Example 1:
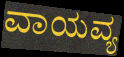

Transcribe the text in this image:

ವಾಯವ್ಯ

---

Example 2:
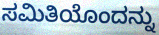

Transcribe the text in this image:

ಸಮಿತಿಯೊಂದನ್ನು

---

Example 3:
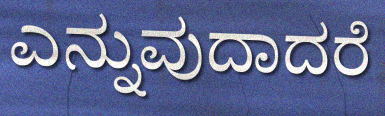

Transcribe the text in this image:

ಎನ್ನುವುದಾದರೆ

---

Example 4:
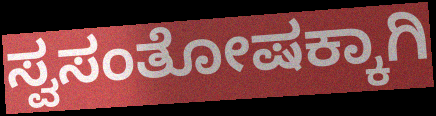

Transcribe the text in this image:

ಸ್ವಸಂತೋಷಕ್ಕಾಗಿ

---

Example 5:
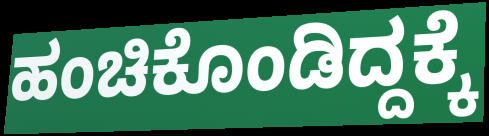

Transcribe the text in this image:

ಹಂಚಿಕೊಂಡಿದ್ದಕ್ಕೆ